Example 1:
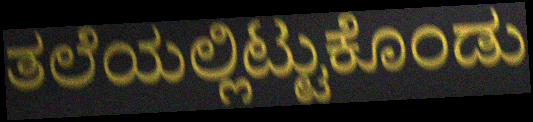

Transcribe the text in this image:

ತಲೆಯಲ್ಲಿಟ್ಟುಕೊಂಡು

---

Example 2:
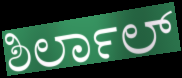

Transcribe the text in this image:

ಶಿರ್ಲಾಲ್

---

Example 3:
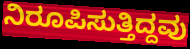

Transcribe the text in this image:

ನಿರೂಪಿಸುತ್ತಿದ್ದವು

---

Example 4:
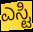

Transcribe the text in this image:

ಎಸ್ಟಿ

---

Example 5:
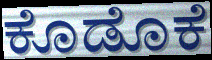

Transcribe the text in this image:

ಕೊಡೊಕೆ